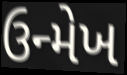
ઉન્મેખ